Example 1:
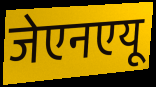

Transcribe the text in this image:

जेएनएयू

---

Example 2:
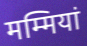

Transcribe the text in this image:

मम्मियां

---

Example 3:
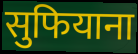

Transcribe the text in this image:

सुफियाना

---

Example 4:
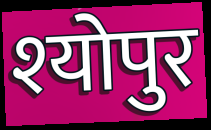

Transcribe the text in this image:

श्‍योपुर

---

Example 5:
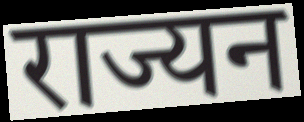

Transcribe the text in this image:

राज्यन